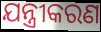
ଯନ୍ତ୍ରୀକରଣ